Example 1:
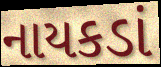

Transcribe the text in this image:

નાયકડાં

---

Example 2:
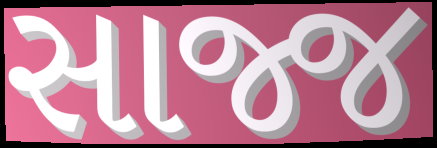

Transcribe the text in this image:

સાજ્જ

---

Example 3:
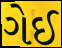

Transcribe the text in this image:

ગેઈ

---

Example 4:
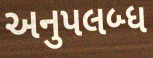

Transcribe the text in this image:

અનુપલબ્ધ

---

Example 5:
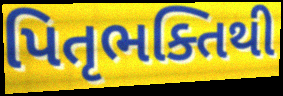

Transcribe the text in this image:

પિતૃભક્તિથી